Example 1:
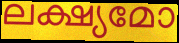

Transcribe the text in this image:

ലക്ഷ്യമോ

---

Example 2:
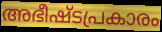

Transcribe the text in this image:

അഭീഷ്ടപ്രകാരം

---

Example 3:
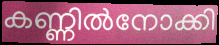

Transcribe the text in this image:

കണ്ണിൽനോക്കി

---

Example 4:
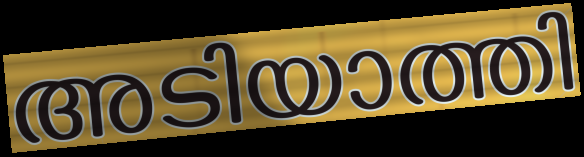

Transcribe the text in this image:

അടിയാത്തി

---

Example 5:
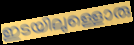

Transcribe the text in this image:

ഇടയിലുള്ളൊരു